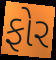
ફોર